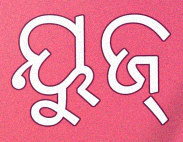
ୟୁଜ୍